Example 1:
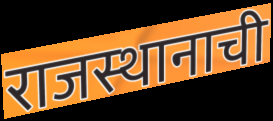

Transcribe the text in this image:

राजस्थानाची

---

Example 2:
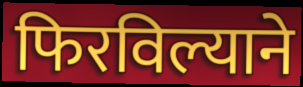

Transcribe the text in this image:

फिरविल्याने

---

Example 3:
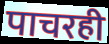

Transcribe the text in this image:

पाचरही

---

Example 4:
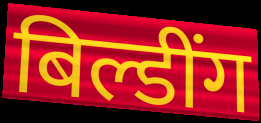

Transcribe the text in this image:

बिल्डींग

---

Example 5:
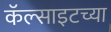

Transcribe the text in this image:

कॅल्साइटच्या